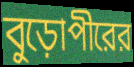
বুড়োপীরের